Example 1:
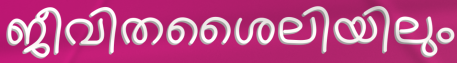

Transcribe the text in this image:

ജീവിതശൈലിയിലും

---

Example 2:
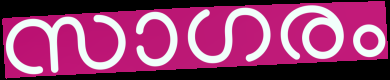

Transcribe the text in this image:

സാഗരം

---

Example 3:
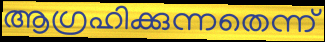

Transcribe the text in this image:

ആഗ്രഹിക്കുന്നതെന്ന്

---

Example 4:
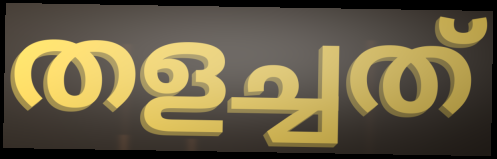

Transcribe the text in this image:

തളച്ചത്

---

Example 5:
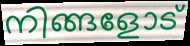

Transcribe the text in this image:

നിങ്ങളോട്